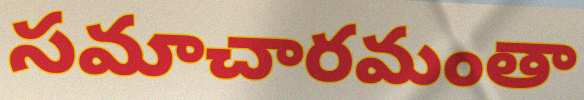
సమాచారమంతా